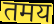
तमय